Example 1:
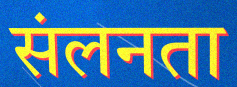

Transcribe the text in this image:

संलनता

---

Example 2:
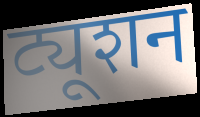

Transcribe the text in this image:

ट्यूशन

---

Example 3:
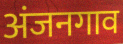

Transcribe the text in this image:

अंजनगाव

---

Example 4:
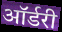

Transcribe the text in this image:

ऑर्डरी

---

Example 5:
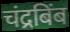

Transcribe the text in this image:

चंद्रबिंब